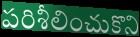
పరిశీలించుకొని